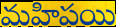
మహిపయి